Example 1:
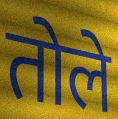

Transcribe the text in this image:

तोले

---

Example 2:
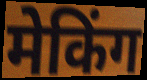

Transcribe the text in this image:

मेकिंग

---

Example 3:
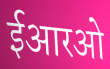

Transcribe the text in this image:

ईआरओ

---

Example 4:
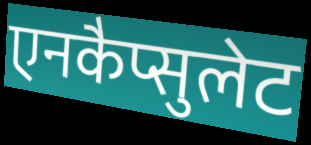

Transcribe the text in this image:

एनकैप्सुलेट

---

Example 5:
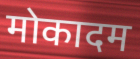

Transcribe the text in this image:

मोकादम